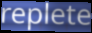
replete